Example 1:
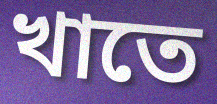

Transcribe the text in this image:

খাতে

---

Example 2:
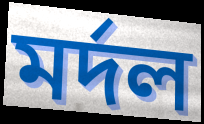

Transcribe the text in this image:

মর্দল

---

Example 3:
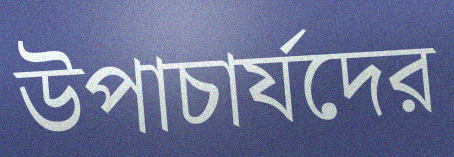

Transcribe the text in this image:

উপাচার্যদের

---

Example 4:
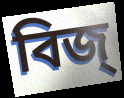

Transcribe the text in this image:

বিজ্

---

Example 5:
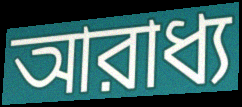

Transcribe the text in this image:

আরাধ্য